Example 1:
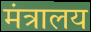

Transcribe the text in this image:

मंत्रालय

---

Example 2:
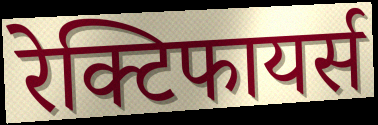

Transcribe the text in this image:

रेक्टिफायर्स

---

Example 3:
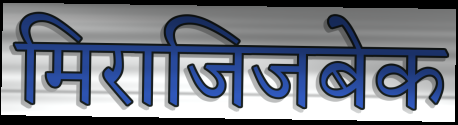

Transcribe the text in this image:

मिराजिजबेक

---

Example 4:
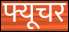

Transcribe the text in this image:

फ्यूचर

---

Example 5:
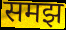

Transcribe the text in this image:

समझ